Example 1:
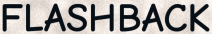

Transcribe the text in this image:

FLASHBACK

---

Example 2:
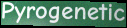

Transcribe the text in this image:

Pyrogenetic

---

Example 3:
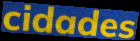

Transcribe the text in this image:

cidades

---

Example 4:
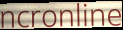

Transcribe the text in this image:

ncronline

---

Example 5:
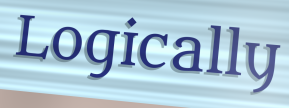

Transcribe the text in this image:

Logically